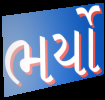
ભર્યો